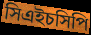
সিএইচসিপি